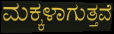
ಮಕ್ಕಳಾಗುತ್ತವೆ